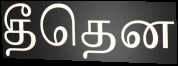
தீதென